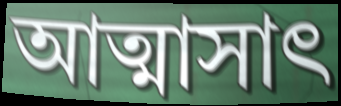
আত্মাসাৎ